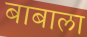
बाबाला